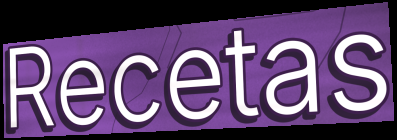
Recetas